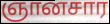
ஞானசார